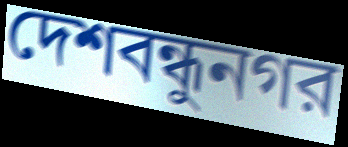
দেশবন্ধুনগর